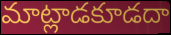
మాట్లాడకూడదా